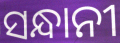
ସନ୍ଧାନୀ